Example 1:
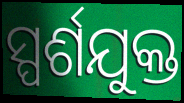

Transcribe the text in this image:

ସ୍ପର୍ଶଯୁକ୍ତ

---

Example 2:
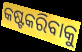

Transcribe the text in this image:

କଷ୍ଟକରିବାକୁ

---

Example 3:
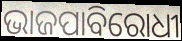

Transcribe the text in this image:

ଭାଜପାବିରୋଧୀ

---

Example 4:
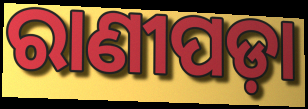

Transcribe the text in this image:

ରାଣୀପଡ଼ା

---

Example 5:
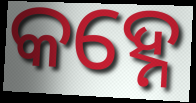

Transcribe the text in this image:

କହ୍ନେ